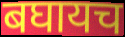
बघायच